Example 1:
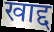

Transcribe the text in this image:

खाद्द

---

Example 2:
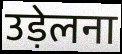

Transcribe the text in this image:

उड़ेलना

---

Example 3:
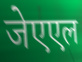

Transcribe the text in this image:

जेएएल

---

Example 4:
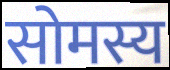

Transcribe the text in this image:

सोमस्य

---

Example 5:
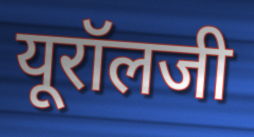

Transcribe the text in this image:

यूरॉलजी